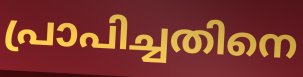
പ്രാപിച്ചതിനെ